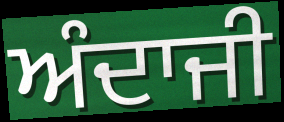
ਅੰਦਾਜੀ